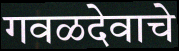
गवळदेवाचे